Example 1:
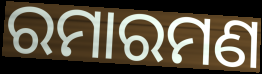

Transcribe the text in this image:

ରମାରମଣ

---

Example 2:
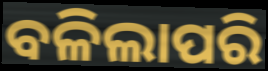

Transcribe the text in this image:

ବଳିଲାପରି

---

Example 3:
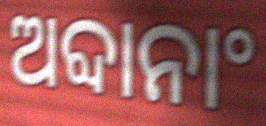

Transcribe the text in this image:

ଅବ୍ଦାନାଂ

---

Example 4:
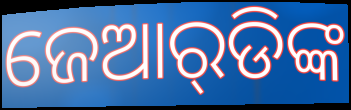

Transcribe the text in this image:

ଜେଆର୍‌ଡିଙ୍କ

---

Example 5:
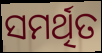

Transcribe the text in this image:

ସମର୍ଥିତ